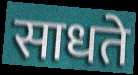
साधते